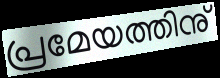
പ്രമേയത്തിനു്